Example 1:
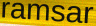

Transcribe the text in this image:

ramsar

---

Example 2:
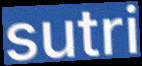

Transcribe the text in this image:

sutri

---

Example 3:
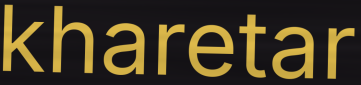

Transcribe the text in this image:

kharetar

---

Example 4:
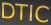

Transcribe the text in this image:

DTIC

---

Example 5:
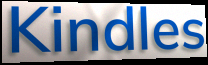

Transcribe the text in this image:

Kindles